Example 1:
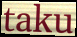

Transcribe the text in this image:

taku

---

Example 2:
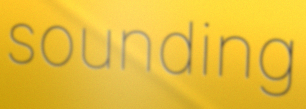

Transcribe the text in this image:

sounding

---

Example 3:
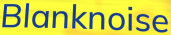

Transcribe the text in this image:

Blanknoise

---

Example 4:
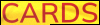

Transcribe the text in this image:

CARDS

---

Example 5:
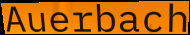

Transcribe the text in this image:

Auerbach